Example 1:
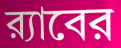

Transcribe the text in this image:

র‍্যাবের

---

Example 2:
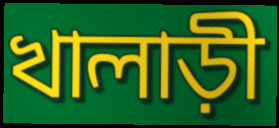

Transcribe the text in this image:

খালাড়ী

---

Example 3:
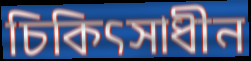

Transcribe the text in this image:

চিকিৎসাধীন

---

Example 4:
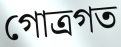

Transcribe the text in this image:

গোত্রগত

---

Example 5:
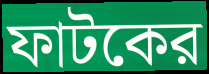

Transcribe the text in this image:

ফাটকের